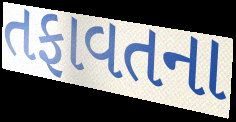
તફાવતના